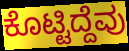
ಕೊಟ್ಟಿದ್ದೆವು